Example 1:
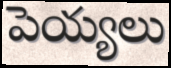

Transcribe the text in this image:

పెయ్యలు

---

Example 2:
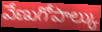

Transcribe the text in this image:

వేణుగోపాల్కు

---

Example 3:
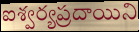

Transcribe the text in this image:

ఐశ్వర్యప్రదాయిని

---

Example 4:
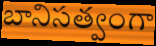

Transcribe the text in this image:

బానిసత్వంగా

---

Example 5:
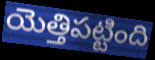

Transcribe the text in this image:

యెత్తిపట్టింది